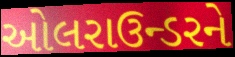
ઓલરાઉન્ડરને